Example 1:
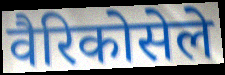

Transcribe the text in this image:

वैरिकोसेले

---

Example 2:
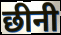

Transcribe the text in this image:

छीनी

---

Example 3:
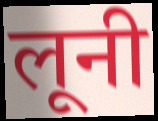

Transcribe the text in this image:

लूनी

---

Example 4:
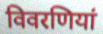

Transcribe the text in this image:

विवरणियां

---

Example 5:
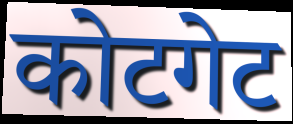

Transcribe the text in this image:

कोटगेट